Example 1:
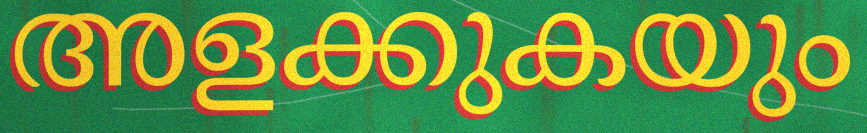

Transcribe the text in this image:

അളക്കുകയും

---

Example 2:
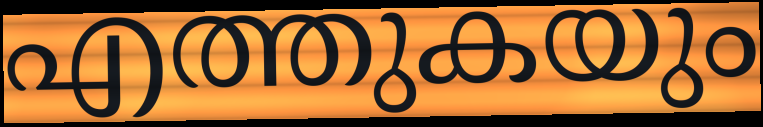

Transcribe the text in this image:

എത്തുകയും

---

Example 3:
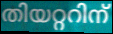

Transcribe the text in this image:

തിയറ്ററിന്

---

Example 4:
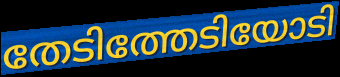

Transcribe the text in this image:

തേടിത്തേടിയോടി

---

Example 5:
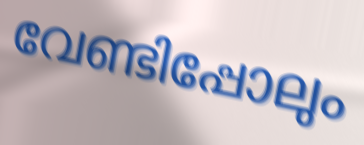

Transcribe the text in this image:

വേണ്ടിപ്പോലും